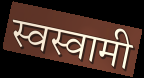
स्वस्वामी